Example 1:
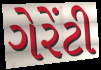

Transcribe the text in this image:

ગેરેંટી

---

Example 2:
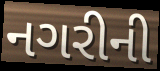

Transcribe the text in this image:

નગરીની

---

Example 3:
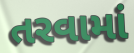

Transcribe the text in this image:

તરવામાં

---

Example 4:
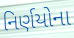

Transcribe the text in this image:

નિર્ણયોના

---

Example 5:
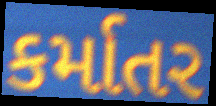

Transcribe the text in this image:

કર્માતર